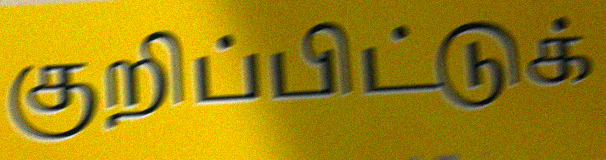
குறிப்பிட்டுக்